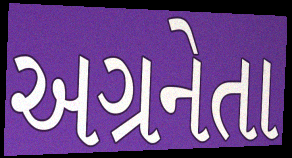
અગ્રનેતા